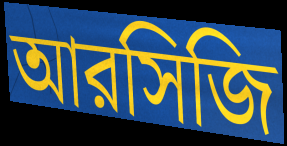
আরসিজি